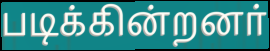
படிக்கின்றனர்